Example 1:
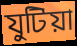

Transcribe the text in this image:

যুটিয়া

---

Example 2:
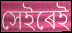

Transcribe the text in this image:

সেইৰেই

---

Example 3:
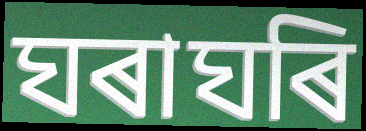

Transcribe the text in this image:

ঘৰাঘৰি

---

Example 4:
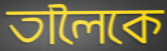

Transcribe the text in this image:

তালৈকে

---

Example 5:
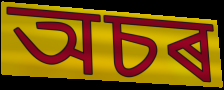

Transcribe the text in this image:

অচৰ